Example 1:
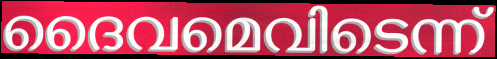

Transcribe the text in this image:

ദൈവമെവിടെന്ന്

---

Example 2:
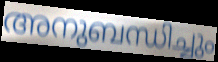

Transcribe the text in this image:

അനുബന്ധിച്ചും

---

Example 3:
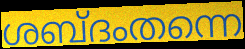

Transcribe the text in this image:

ശബ്ദംതന്നെ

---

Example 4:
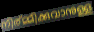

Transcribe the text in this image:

നിര്മ്മിക്കുവാനുള്ള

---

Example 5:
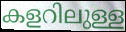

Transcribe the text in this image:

കളറിലുള്ള